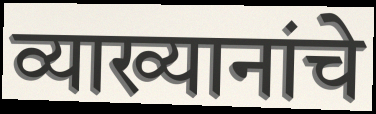
व्याख्यानांचे